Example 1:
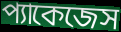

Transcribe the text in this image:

প্যাকেজেস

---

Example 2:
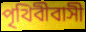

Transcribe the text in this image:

পৃথিবীবাসী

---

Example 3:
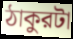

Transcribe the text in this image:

ঠাকুরটা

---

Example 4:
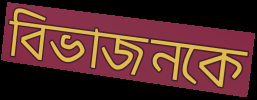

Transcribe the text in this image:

বিভাজনকে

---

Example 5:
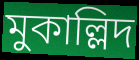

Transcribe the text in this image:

মুকাল্লিদ